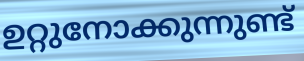
ഉറ്റുനോക്കുന്നുണ്ട്